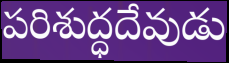
పరిశుద్ధదేవుడు